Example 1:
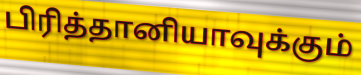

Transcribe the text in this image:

பிரித்தானியாவுக்கும்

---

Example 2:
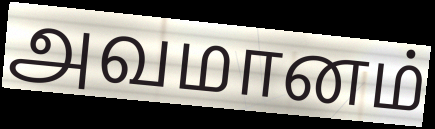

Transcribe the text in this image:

அவமானம்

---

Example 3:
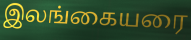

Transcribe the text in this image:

இலங்கையரை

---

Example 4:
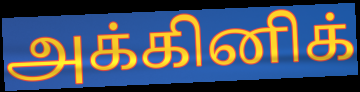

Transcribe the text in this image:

அக்கினிக்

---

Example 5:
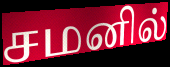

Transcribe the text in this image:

சமனில்